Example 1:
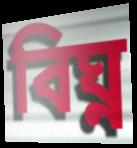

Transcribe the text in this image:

বিঘ্ন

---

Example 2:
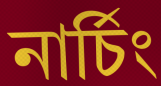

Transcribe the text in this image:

নাৰ্চিং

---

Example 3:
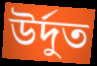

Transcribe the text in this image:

উৰ্দুত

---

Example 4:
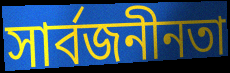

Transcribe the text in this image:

সাৰ্বজনীনতা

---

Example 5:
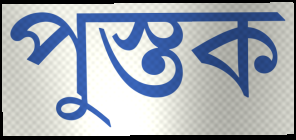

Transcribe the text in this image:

পুস্তক